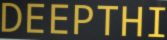
DEEPTHI